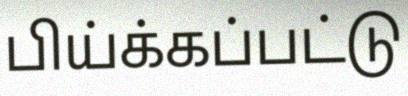
பிய்க்கப்பட்டு